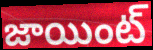
జాయింట్